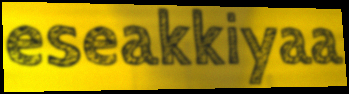
eseakkiyaa